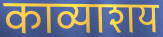
काव्याशय